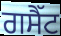
ਗਸੈੱਟ